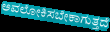
ಅವಲೋಕಿಸಬೇಕಾಗುತ್ತದೆ